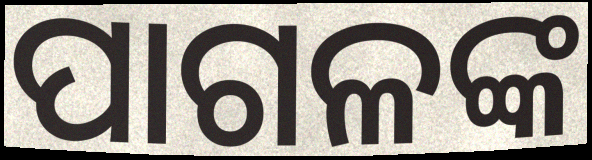
ପାଗଳଙ୍କ